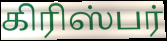
கிரிஸ்பர்